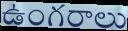
ఉంగరాలు